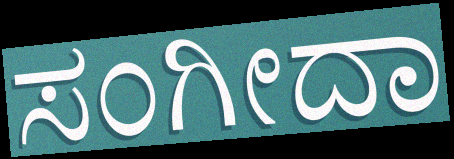
ಸಂಗೀದಾ